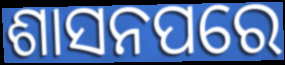
ଶାସନପରେ